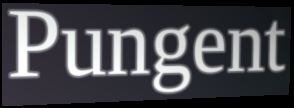
Pungent